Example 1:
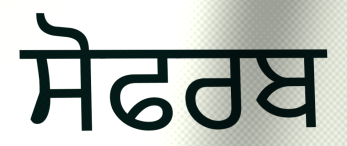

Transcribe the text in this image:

ਸੋਫਰਬ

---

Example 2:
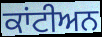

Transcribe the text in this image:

ਕਾਂਟੀਅਨ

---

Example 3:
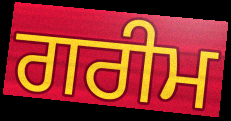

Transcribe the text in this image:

ਗਰੀਮ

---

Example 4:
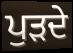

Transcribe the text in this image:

ਪੁੜਦੇ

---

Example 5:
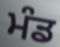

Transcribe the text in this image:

ਮੰਡ